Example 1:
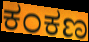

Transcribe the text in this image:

ಕಂಕಣ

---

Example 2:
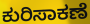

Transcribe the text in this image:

ಕುರಿಸಾಕಣೆ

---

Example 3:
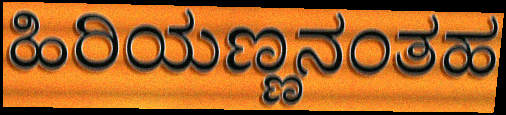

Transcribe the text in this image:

ಹಿರಿಯಣ್ಣನಂತಹ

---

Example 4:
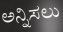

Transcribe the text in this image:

ಅನ್ನಿಸಲು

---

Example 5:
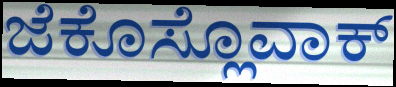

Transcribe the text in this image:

ಜೆಕೊಸ್ಲೊವಾಕ್